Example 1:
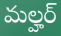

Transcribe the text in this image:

మల్హర్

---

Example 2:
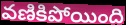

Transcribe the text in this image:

వణికిపోయింది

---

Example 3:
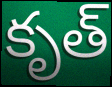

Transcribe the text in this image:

కృత్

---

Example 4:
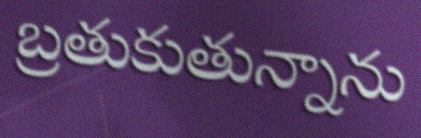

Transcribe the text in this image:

బ్రతుకుతున్నాను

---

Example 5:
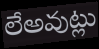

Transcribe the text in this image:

లేఅవుట్లు